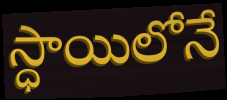
స్ధాయిలోనే